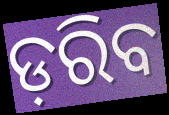
ଡ଼ରିବ